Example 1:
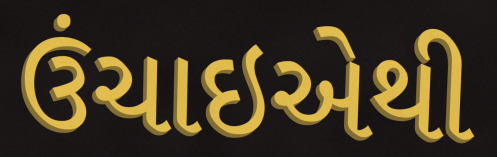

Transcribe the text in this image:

ઉંચાઇએથી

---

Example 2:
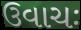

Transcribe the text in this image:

ઉવાચઃ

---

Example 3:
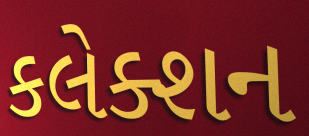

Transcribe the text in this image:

કલેક્શન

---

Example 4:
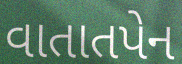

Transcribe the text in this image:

વાતાતપેન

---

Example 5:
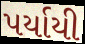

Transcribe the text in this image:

પર્યાયી